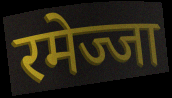
रमेज्जा